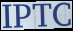
IPTC